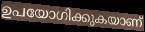
ഉപയോഗിക്കുകയാണ്